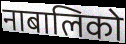
नाबालिको